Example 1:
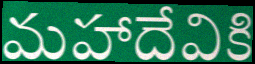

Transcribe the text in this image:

మహాదేవికి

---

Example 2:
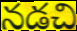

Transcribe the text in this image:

నడచి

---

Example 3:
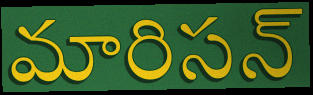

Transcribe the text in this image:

మారిసన్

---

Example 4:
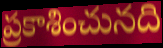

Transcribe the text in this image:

ప్రకాశించునది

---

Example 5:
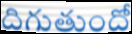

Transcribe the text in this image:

దిగుతుందో